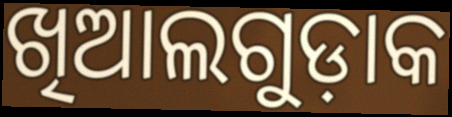
ଖିଆଲଗୁଡ଼ାକ